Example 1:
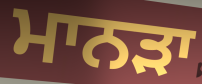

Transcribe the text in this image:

ਮਾਨੜਾ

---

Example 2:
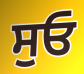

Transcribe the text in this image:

ਸੁਓ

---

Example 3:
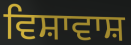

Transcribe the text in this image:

ਵਿਸ਼ਾਵਾਸ਼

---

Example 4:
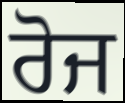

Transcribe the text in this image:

ਰੋਜ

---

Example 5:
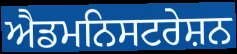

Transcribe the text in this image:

ਐਡਮਨਿਸਟਰੇਸ਼ਨ